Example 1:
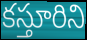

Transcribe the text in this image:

కస్తూరిని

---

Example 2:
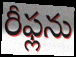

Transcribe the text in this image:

రీఫ్లను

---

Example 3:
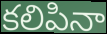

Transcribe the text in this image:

కలిపినా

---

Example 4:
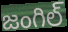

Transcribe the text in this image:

జంగిల్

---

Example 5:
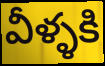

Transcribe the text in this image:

వీళ్ళకి